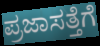
ಪ್ರಜಾಸತ್ತೆಗೆ